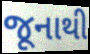
જૂનાથી